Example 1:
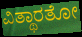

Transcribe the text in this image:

ವಿತ್ಥಾರತೋ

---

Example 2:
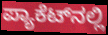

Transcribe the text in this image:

ಪ್ಯಾಕೆಟ್‌ನಲ್ಲಿ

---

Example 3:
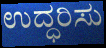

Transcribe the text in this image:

ಉದ್ಧರಿಸು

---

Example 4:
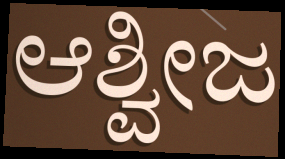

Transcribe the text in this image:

ಆಶ್ವೀಜ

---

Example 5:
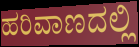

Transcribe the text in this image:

ಹರಿವಾಣದಲ್ಲಿ